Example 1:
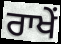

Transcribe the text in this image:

ਰਾਖੇਂ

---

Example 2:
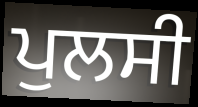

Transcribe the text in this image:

ਪੁਲਸੀ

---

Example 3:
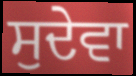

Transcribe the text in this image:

ਸੁਦੇਵਾ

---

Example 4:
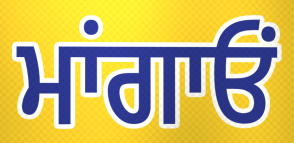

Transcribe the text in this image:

ਮਾਂਗਾਓਂ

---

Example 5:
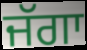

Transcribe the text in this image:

ਜੱਗਾ